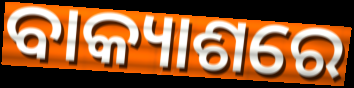
ବାକ୍ୟାଶରେ